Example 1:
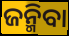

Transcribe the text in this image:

ଜନ୍ମିବା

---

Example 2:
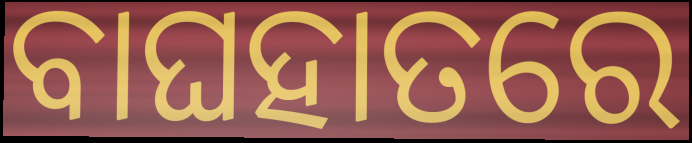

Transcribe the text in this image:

ବାଘହାତରେ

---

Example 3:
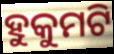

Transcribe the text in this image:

ହୁକୁମଟି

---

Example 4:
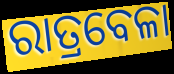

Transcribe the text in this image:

ରାତ୍ରବେଳା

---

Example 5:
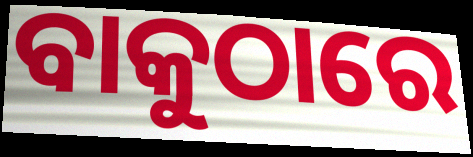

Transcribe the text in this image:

ବାକୁଠାରେ